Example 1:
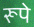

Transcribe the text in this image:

रूपे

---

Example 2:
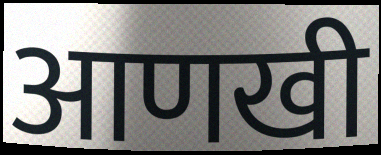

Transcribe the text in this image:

आणखी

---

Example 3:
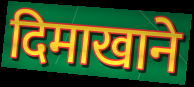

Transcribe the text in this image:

दिमाखाने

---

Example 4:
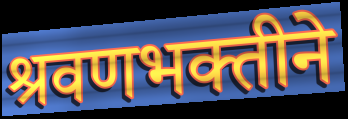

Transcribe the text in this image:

श्रवणभक्तीने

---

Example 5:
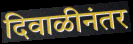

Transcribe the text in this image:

दिवाळीनंतर